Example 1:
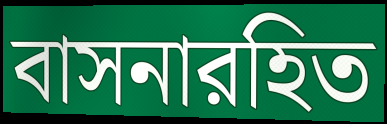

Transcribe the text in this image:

বাসনারহিত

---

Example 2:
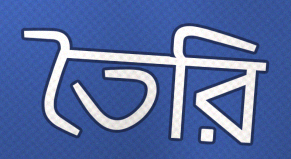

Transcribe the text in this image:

তৈরি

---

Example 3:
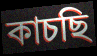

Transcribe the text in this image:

কাচছি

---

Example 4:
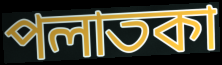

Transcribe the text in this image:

পলাতকা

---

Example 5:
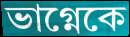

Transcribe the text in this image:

ভাগ্নেকে